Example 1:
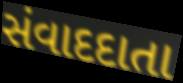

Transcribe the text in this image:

સંવાદદાતા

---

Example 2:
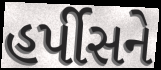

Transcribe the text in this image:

હર્પીસને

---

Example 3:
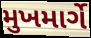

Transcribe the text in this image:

મુખમાર્ગે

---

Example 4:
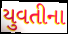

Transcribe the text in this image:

યુવતીના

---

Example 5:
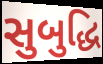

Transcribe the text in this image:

સુબુદ્ધિ